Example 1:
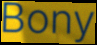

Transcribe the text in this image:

Bony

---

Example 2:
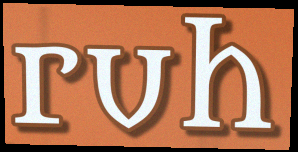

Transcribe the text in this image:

ruh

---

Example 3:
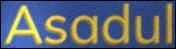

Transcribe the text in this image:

Asadul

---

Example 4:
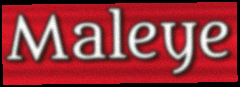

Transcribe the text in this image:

Maleye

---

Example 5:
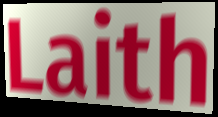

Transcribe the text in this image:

Laith